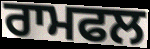
ਰਾਮਫਲ